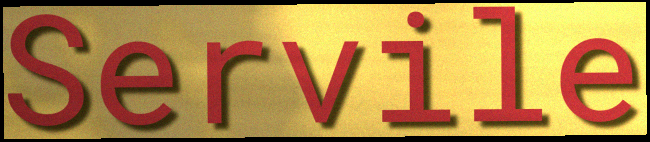
Servile